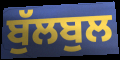
ਬੁੱਲਬੁਲ